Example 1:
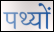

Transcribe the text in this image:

पथ्यों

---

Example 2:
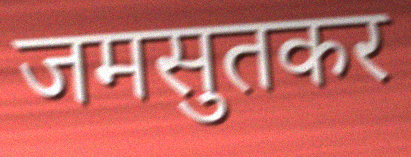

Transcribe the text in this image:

जमसुतकर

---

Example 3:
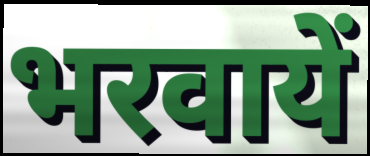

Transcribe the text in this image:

भरवायें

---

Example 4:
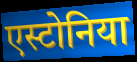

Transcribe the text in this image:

एस्टोनिया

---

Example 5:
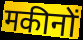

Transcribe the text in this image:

मकीनों